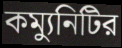
কম্যুনিটির